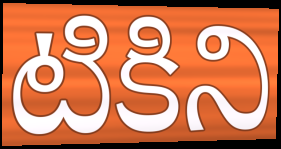
టికిని